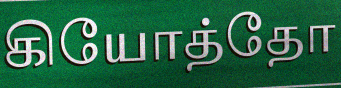
கியோத்தோ